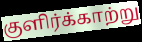
குளிர்க்காற்று